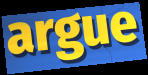
argue